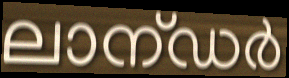
ലാന്ഡർ